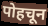
पोहचून